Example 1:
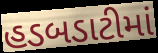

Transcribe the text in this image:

હડબડાટીમાં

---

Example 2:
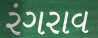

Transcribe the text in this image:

રંગરાવ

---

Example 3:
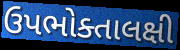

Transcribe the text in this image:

ઉપભોક્તાલક્ષી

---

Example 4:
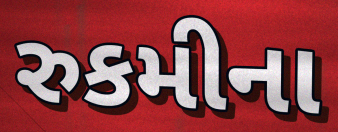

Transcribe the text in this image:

રુકમીના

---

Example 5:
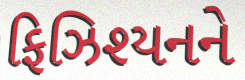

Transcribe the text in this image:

ફિઝિશ્યનને